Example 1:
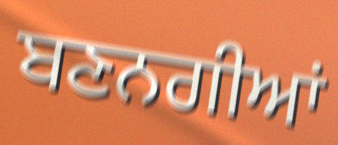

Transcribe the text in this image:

ਬਣਨਗੀਆਂ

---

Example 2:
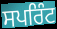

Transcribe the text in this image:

ਸਪਰਿੰਟ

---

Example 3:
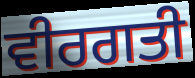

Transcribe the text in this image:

ਵੀਰਗਤੀ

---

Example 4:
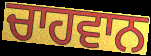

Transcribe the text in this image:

ਚਾਹਵਾਨ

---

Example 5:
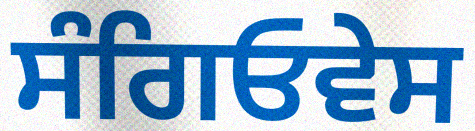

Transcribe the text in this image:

ਸੰਗਿਓਵੇਸ